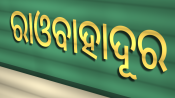
ରାଓବାହାଦୂର